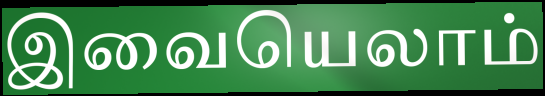
இவையெலாம்